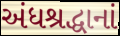
અંધશ્રદ્ધાનાં